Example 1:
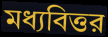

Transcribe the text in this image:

মধ্যবিত্তর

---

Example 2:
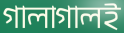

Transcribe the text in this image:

গালাগালই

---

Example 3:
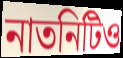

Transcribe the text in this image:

নাতনিটিও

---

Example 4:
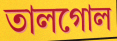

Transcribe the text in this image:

তালগোল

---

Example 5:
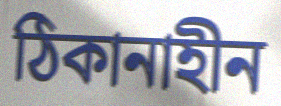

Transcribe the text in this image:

ঠিকানাহীন